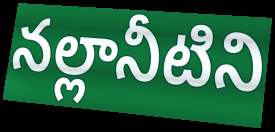
నల్లానీటిని